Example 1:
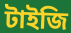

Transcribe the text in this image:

টাইজি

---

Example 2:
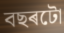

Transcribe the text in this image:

বছৰটো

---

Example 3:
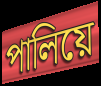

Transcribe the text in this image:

পালিয়ে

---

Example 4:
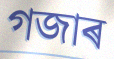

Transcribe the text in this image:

গজাৰ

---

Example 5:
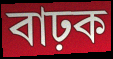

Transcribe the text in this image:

বাঢ়ক